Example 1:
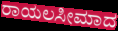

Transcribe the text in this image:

ರಾಯಲಸೀಮಾದ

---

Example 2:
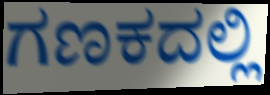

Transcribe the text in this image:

ಗಣಕದಲ್ಲಿ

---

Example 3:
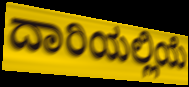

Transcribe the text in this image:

ದಾರಿಯಲ್ಲಿಯೆ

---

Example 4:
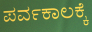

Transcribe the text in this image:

ಪರ್ವಕಾಲಕ್ಕೆ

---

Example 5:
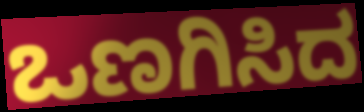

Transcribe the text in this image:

ಒಣಗಿಸಿದ